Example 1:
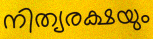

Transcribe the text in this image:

നിത്യരക്ഷയും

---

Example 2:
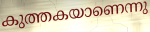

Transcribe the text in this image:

കുത്തകയാണെന്നു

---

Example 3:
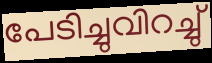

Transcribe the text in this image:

പേടിച്ചുവിറച്ചു്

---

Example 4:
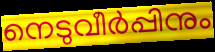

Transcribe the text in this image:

നെടുവീർപ്പിനും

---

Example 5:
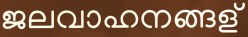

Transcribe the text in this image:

ജലവാഹനങ്ങള്